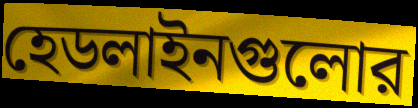
হেডলাইনগুলোর